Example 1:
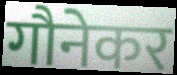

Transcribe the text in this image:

गौनेकर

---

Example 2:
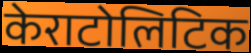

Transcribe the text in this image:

केराटोलिटिक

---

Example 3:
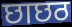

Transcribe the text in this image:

छाछठ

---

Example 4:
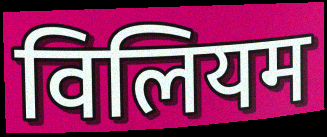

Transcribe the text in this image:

विलियम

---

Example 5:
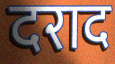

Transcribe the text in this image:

दराद